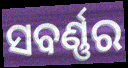
ସବର୍ଣ୍ଣର